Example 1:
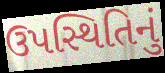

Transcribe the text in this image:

ઉપસ્થિતિનું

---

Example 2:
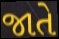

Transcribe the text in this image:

જાતે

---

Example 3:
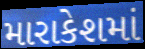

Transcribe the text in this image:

મારાકેશમાં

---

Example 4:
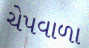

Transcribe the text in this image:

ચેપવાળા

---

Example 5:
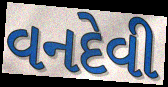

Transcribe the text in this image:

વનદેવી